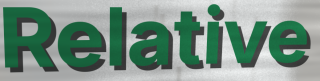
Relative